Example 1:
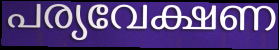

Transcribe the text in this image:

പര്യവേക്ഷണ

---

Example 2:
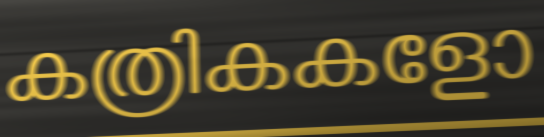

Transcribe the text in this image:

കത്രികകളോ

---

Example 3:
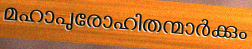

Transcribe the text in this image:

മഹാപുരോഹിതന്മാർക്കും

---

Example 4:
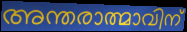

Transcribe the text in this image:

അന്തരാത്മാവിന്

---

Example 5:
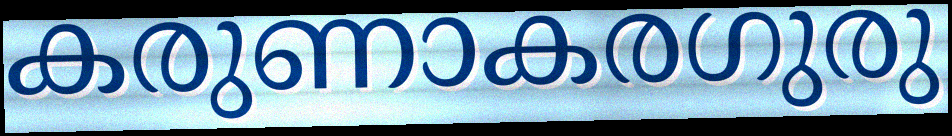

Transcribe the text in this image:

കരുണാകരഗുരു